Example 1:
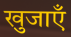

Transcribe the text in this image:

खुजाएँ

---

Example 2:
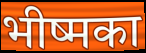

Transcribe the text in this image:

भीष्मका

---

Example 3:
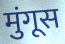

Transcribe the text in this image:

मुंगूस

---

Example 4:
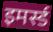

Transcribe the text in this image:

इमर्स्ड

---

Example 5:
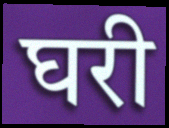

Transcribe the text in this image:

घरी